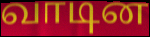
வாடின